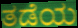
ತಡೆಯ